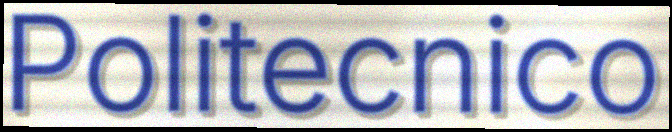
Politecnico